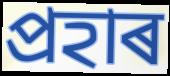
প্ৰহাৰ